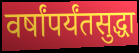
वर्षांपर्यंतसुद्धा